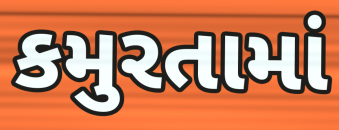
કમુરતામાં